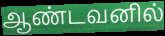
ஆண்டவனில்